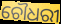
ଚୌଧରୀ